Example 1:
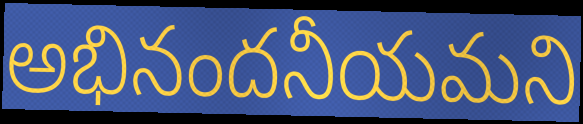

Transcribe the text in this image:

అభినందనీయమని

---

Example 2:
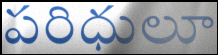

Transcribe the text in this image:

పరిధులూ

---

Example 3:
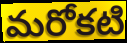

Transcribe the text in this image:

మరోకటి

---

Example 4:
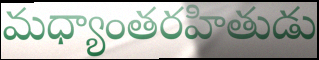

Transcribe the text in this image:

మధ్యాంతరహితుడు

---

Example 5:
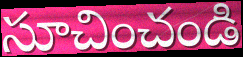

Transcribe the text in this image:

సూచించండి